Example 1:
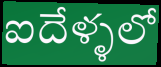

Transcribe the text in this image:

ఐదేళ్ళలో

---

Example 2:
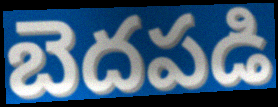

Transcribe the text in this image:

బెదపడి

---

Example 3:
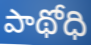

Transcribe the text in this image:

పాథోధి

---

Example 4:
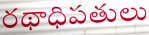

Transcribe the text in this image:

రథాధిపతులు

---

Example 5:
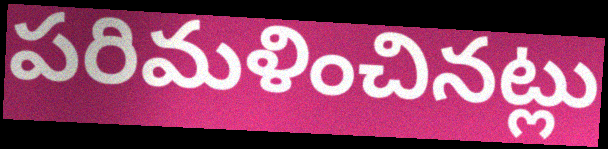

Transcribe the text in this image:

పరిమళించినట్లు